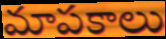
మాపకాలు